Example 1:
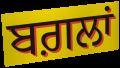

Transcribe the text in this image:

ਬਗ਼ਲਾਂ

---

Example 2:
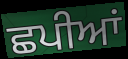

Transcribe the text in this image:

ਛਪੀਆਂ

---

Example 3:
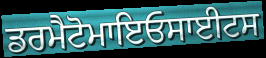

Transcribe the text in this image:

ਡਰਮੈਟੋਮਾਇਓਸਾਈਟਸ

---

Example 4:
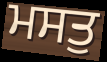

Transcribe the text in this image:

ਮਸਤੁ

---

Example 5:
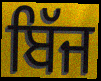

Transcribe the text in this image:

ਬਿੱਜ